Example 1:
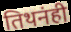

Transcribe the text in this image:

तिथनंही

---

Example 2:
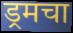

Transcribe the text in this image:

ड्रमचा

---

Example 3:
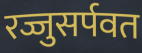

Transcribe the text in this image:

रज्जुसर्पवत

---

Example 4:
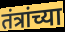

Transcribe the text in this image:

तंत्रांच्या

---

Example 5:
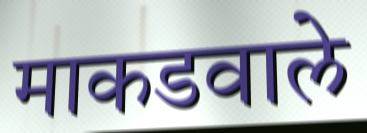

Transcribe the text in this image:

माकडवाले